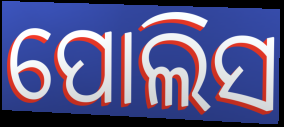
ପୋଲିସ